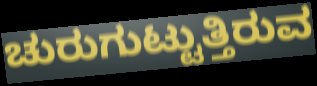
ಚುರುಗುಟ್ಟುತ್ತಿರುವ